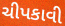
ચીપકાવી